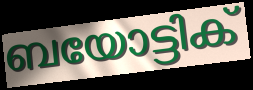
ബയോട്ടിക്